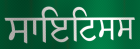
ਸਾਇਟਿਸਸ